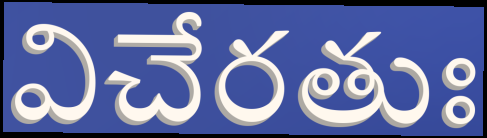
విచేరతుః